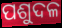
ପଶୁଦଳ